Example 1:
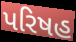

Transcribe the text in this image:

પરિષહ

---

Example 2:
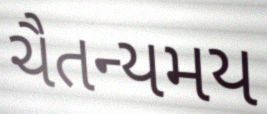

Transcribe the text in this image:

ચૈતન્યમય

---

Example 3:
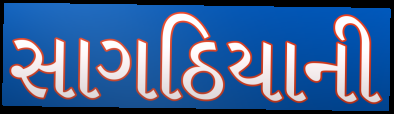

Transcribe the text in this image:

સાગઠિયાની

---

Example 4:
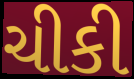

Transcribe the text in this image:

ચીકી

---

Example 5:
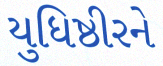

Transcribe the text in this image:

યુધિષ્ઠીરને